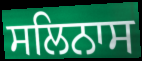
ਸਲਿਨਾਸ